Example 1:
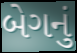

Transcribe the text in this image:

બેગનું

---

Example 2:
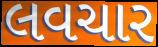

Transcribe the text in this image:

લવચાર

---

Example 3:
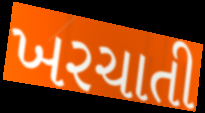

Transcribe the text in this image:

ખરચાતી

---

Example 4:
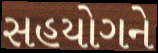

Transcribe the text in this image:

સહયોગને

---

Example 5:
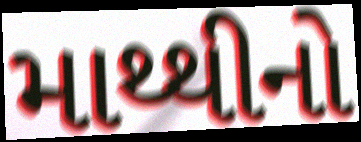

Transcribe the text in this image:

માથ્થીનો